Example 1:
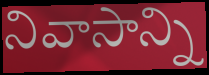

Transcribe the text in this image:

నివాసాన్ని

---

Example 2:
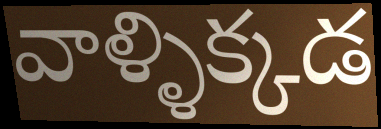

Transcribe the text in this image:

వాళ్ళిక్కడ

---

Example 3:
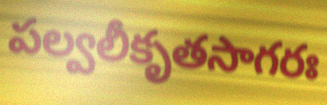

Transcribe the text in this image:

పల్వలీకృతసాగరః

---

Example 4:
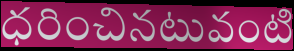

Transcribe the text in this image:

ధరించినటువంటి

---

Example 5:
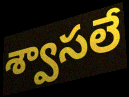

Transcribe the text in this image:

శ్వాసలే